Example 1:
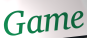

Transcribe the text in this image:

Game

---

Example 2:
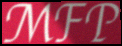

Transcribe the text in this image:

MFP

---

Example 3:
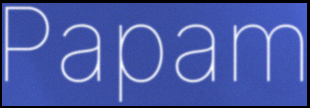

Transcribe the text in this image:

Papam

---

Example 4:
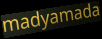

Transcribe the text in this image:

madyamada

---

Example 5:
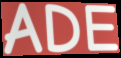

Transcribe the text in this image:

ADE